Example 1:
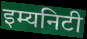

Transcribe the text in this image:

इम्यनिटी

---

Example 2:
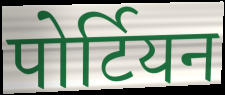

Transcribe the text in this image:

पोर्टियन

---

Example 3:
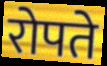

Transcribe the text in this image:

रोपते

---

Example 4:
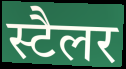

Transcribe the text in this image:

स्टैलर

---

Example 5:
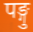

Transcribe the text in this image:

पङ्गु